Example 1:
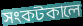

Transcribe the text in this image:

সংকটকালে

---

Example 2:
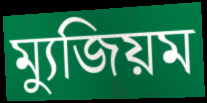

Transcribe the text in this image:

ম্যুজিয়ম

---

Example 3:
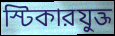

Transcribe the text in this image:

স্টিকারযুক্ত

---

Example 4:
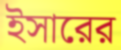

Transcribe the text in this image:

ইসারের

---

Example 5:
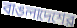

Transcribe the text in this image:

বাঙলাদেশের